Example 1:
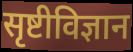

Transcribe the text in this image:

सृष्टीविज्ञान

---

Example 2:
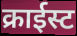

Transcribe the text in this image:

क्राईस्ट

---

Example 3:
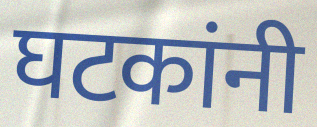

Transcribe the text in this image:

घटकांनी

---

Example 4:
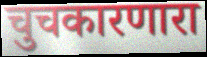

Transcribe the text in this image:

चुचकारणारा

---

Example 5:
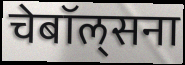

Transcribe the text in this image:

चेबॉल्सना